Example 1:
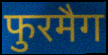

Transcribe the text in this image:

फुरमैग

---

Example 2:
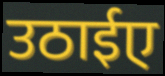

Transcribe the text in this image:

उठाईए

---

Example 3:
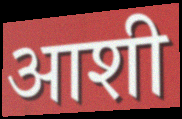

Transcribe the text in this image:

आशी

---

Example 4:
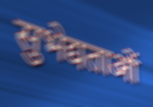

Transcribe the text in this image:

सुभेद्यताओं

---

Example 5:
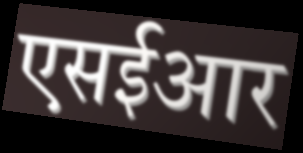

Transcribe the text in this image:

एसईआर